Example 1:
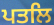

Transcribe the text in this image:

ਪਤਲਿ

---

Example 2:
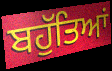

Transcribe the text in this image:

ਬਹੁੱਤਿਆਂ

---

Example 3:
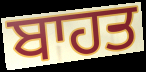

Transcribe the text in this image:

ਬਾਹਤ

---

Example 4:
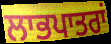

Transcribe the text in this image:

ਲਾਭਪਾਤਰਾਂ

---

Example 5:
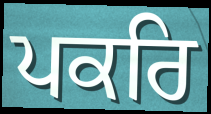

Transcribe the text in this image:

ਪਕਰਿ